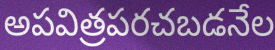
అపవిత్రపరచబడనేల